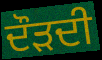
ਦੌੜਦੀ